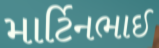
માર્ટિનભાઈ